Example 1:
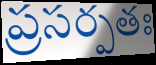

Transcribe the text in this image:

ప్రసర్పతః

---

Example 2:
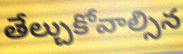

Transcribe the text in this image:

తేల్చుకోవాల్సిన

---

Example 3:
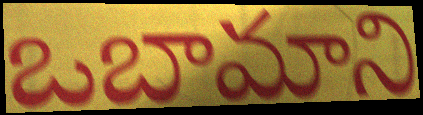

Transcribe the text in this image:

ఒబామాని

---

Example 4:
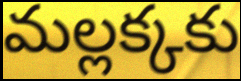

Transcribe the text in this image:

మల్లక్కకు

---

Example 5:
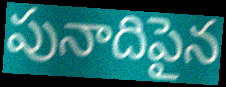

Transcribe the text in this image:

పునాదిపైన